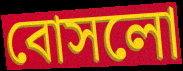
বোসলো